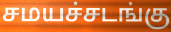
சமயச்சடங்கு